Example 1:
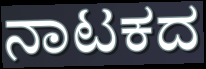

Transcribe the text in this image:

ನಾಟಕದ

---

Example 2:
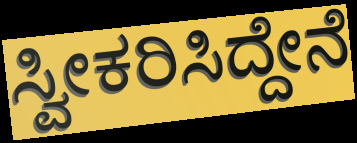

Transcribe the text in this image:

ಸ್ವೀಕರಿಸಿದ್ದೇನೆ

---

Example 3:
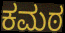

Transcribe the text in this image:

ಕಮಠ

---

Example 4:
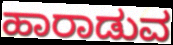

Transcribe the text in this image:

ಹಾರಾಡುವ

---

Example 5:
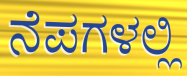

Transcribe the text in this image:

ನೆಪಗಳಲ್ಲಿ